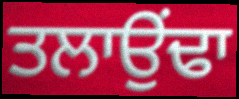
ਤਲਾਉਂਢਾ